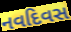
નવદિવસ